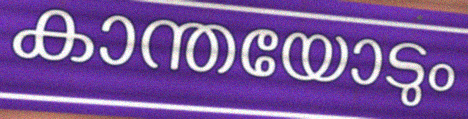
കാന്തയോടും